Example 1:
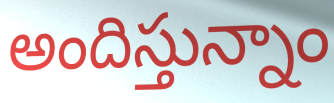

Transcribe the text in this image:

అందిస్తున్నాం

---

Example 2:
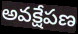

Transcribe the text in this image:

అవక్షేపణ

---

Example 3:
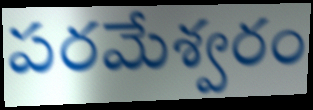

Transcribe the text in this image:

పరమేశ్వరం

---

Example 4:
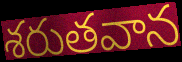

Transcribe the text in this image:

శరుతవాన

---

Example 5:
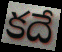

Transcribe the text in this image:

కదే